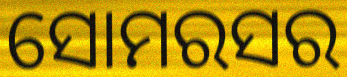
ସୋମରସର